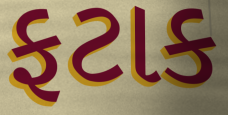
ફટાક